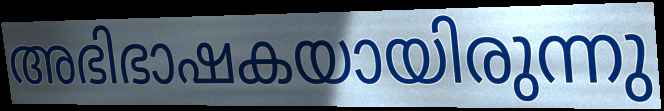
അഭിഭാഷകയായിരുന്നു